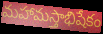
మహామస్తాభిషేకం